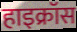
हाइक्रॉस